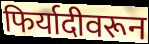
फिर्यादीवरून